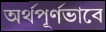
অর্থপূর্ণভাবে